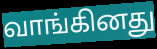
வாங்கினது